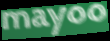
mayoo